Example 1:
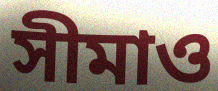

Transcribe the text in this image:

সীমাও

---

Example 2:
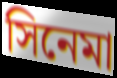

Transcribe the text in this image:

সিনেমা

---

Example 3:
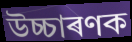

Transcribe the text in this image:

উচ্চাৰণক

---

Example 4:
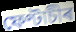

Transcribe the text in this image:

ফেণ্টাচীৰ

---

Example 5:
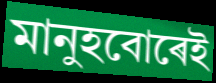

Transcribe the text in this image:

মানুহবোৰেই